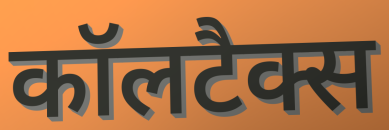
कॉलटैक्स